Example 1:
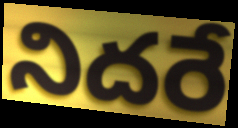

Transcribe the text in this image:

నిదరే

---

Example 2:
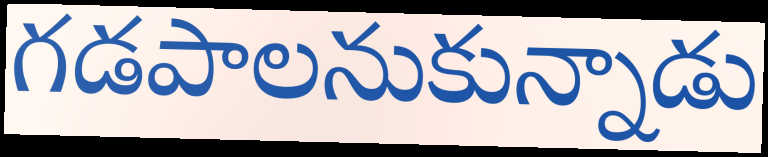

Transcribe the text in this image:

గడపాలనుకున్నాడు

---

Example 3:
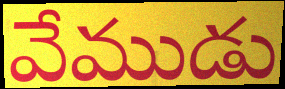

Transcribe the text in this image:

వేముడు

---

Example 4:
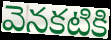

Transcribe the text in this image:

వెనకటికి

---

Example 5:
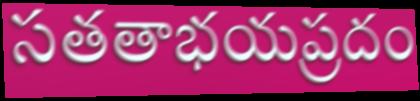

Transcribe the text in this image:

సతతాభయప్రదం